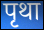
पृथा